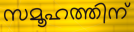
സമൂഹത്തിന്